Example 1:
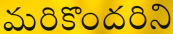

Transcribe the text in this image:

మరికొందరిని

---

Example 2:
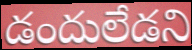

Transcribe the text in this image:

డందులేడని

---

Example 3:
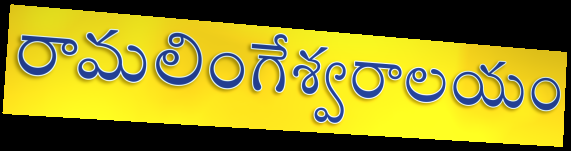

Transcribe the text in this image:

రామలింగేశ్వరాలయం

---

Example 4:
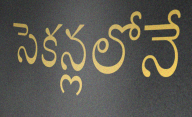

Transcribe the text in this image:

సెకన్లలోనే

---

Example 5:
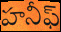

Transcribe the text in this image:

హనీఫ్